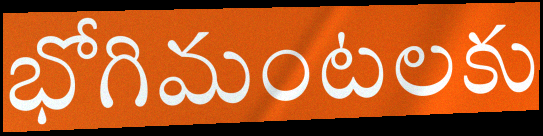
భోగిమంటలకు